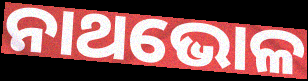
ନାଥଭୋଳ